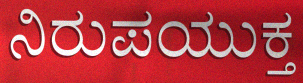
ನಿರುಪಯುಕ್ತ